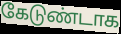
கேடுண்டாக